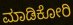
ಮಾಡಿಕೋರಿ